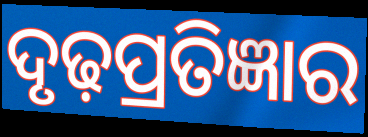
ଦୃଢ଼ପ୍ରତିଜ୍ଞାର